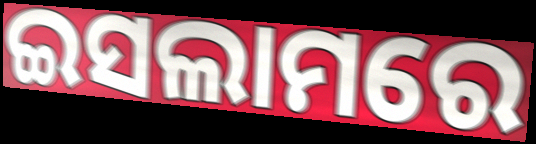
ଇସଲାମରେ